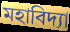
মহাবিদ্যা